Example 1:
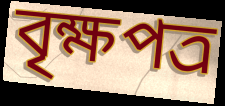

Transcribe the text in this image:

বৃক্ষপত্র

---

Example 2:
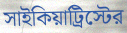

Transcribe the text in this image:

সাইকিয়াট্রিস্টের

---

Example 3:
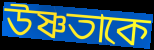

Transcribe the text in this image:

উষ্ণতাকে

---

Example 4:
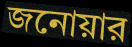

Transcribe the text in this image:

জনোয়ার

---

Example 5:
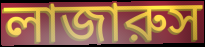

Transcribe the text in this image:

লাজারুস